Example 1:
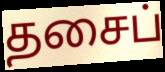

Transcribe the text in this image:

தசைப்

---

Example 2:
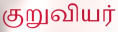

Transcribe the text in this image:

குறுவியர்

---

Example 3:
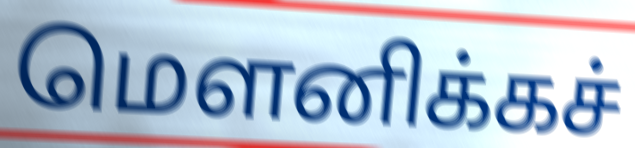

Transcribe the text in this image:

மௌனிக்கச்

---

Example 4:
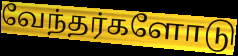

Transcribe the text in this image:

வேந்தர்களோடு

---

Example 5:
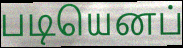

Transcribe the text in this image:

படியெனப்